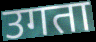
उगता